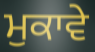
ਮੁਕਾਵੇ